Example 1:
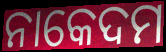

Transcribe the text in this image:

ନାକେଦମ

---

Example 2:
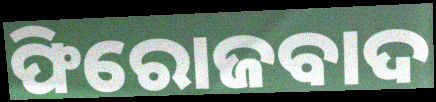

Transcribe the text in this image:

ଫିରୋଜବାଦ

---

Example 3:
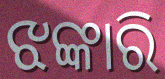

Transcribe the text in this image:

ଝଙ୍କାରି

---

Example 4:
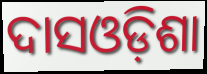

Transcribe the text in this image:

ଦାସଓଡ଼ିଶା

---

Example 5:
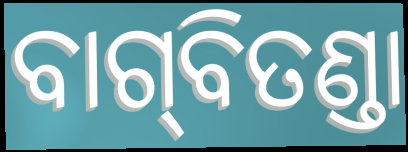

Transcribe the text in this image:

ବାଗ୍‍ବିତଣ୍ଡା